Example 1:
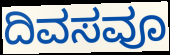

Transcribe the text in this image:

ದಿವಸವೂ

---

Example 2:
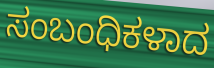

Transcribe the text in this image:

ಸಂಬಂಧಿಕಳಾದ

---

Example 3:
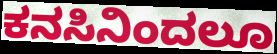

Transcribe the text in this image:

ಕನಸಿನಿಂದಲೂ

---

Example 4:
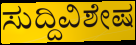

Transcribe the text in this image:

ಸುದ್ದಿವಿಶೇಷ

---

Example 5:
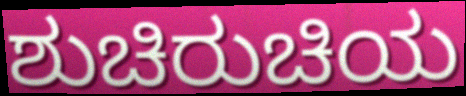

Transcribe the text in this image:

ಶುಚಿರುಚಿಯ